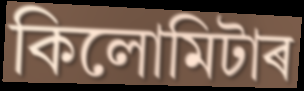
কিলোমিটাৰ